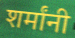
शर्मांनी